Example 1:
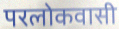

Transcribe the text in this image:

परलोकवासी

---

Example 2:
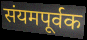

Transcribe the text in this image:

संयमपूर्वक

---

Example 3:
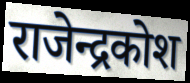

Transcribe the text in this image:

राजेन्द्रकोश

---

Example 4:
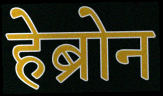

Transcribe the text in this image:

हेब्रोन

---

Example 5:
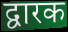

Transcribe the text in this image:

द्वारक